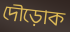
দৌড়োক